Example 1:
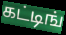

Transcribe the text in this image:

கட்டிங்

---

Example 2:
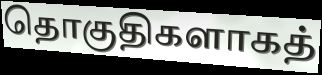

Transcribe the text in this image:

தொகுதிகளாகத்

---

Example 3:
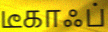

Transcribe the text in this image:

டீகாஃப்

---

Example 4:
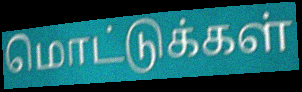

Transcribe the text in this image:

மொட்டுக்கள்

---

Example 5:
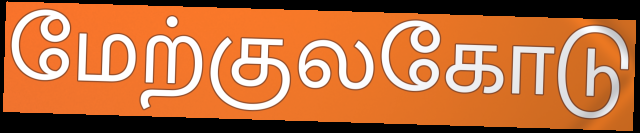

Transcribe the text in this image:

மேற்குலகோடு